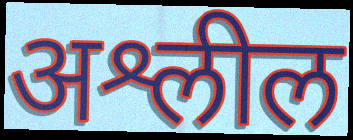
अश्लील